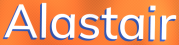
Alastair